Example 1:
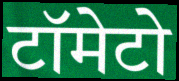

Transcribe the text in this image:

टॉमेटो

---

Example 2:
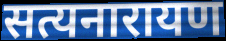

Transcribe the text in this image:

सत्यनारायण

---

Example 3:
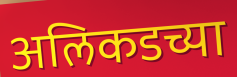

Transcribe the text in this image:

अलिकडच्या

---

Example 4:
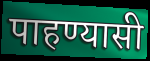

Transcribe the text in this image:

पाहण्यासी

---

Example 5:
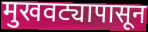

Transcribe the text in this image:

मुखवट्यापासून